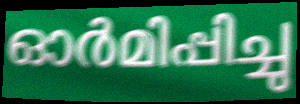
ഓർമിപ്പിച്ചു